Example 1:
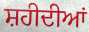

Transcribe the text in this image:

ਸ਼ਹੀਦੀਆਂ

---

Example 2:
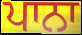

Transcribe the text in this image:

ਪਾਨਾ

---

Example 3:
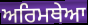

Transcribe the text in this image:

ਅਰਿਮਥੇਆ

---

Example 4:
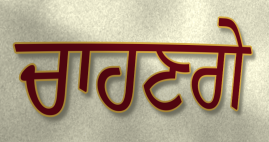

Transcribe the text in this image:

ਚਾਹਣਗੇ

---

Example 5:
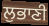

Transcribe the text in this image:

ਲੁਭਾਣੀ